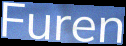
Furen